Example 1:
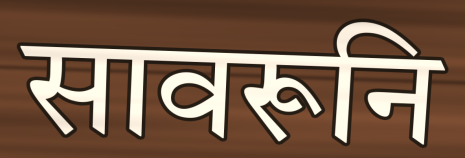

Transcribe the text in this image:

सावरूनि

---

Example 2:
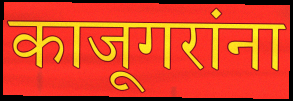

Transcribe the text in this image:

काजूगरांना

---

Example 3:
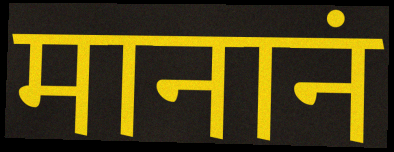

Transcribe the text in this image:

मानानं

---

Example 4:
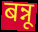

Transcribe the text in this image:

बन्नू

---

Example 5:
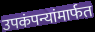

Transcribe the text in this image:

उपकंपन्यांमार्फत